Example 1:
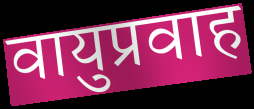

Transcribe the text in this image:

वायुप्रवाह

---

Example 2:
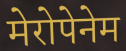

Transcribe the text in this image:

मेरोपेनेम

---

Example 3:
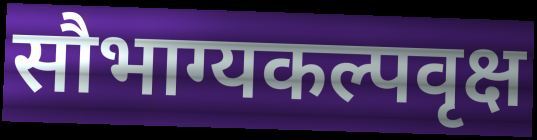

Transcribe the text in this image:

सौभाग्यकल्पवृक्ष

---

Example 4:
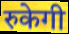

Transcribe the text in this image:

रुकेगी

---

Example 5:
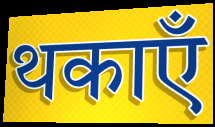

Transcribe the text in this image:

थकाएँ